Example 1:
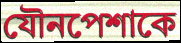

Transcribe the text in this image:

যৌনপেশাকে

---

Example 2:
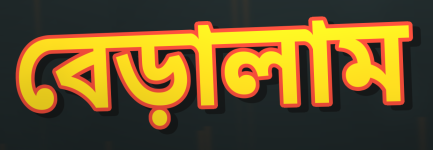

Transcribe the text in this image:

বেড়ালাম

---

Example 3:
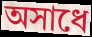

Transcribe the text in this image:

অসাধে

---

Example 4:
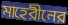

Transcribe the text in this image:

মাহেরীনের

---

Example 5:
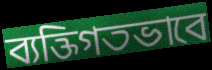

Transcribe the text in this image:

ব্যক্তিগতভাবে